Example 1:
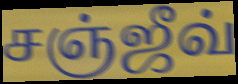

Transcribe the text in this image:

சஞ்ஜீவ்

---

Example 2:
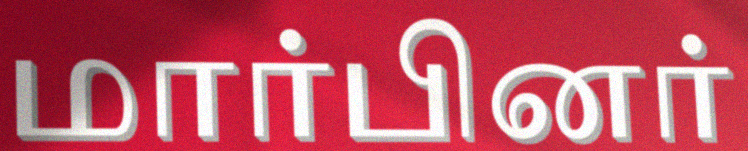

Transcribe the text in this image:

மார்பினர்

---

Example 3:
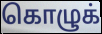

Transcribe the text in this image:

கொழுக்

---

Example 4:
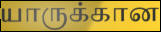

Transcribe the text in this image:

யாருக்கான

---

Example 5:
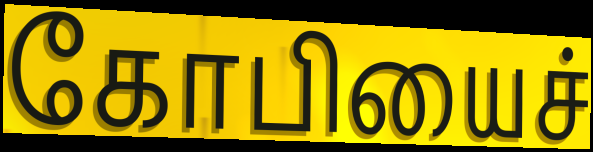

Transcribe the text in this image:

கோபியைச்